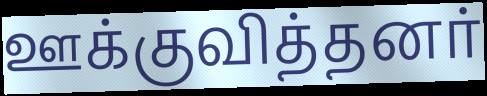
ஊக்குவித்தனர்